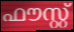
ഫൗസ്റ്റ്